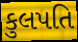
કુલપતિ